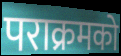
पराक्रमको